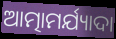
ଆତ୍ମାମର୍ଯ୍ୟାଦା